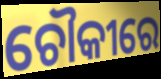
ଚୌକୀରେ